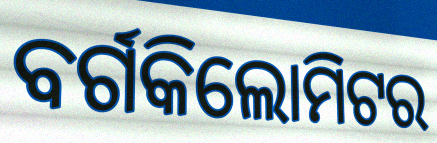
ବର୍ଗକିଲୋମିଟର